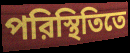
পরিস্থিতিতে